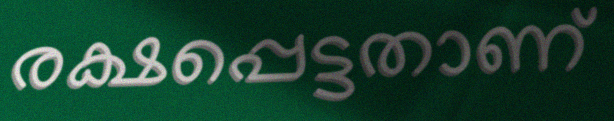
രക്ഷപ്പെട്ടതാണ്